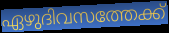
ഏഴുദിവസത്തേക്ക്